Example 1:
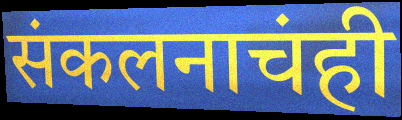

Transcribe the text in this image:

संकलनाचंही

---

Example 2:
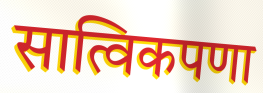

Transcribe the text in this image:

सात्विकपणा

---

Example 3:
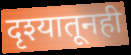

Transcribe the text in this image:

दृश्यातूनही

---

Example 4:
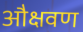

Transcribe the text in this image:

औक्षवण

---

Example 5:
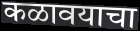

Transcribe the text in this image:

कळावयाचा